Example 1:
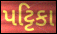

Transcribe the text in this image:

પટ્ટિકા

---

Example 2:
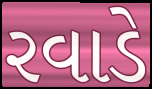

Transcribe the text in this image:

રવાડે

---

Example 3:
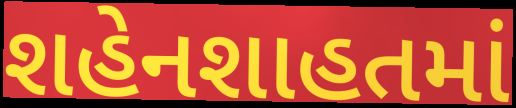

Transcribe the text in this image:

શહેનશાહતમાં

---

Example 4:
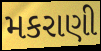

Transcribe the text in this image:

મકરાણી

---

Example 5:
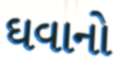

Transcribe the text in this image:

ઘવાનો